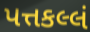
પત્તકલ્લં